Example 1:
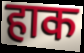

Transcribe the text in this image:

हाक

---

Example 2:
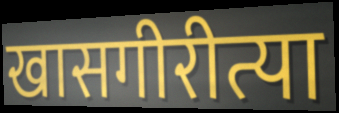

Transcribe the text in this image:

खासगीरीत्या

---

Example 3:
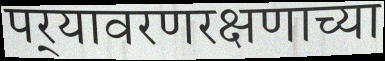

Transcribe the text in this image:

पर्यावरणरक्षणाच्या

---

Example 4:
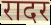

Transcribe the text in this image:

रादर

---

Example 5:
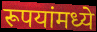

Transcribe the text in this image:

रूपयांमध्ये